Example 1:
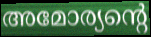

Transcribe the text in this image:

അമോര്യന്റെ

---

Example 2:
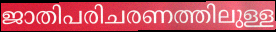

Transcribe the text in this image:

ജാതിപരിചരണത്തിലുള്ള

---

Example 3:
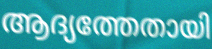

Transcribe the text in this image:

ആദ്യത്തേതായി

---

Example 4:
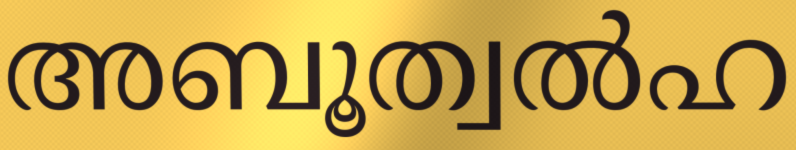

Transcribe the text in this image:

അബൂത്വൽഹ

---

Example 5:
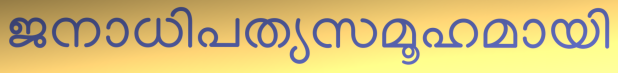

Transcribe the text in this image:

ജനാധിപത്യസമൂഹമായി